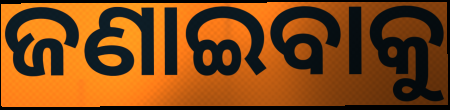
ଜଣାଇବାକୁ